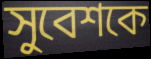
সুবেশকে